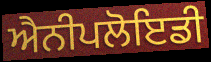
ਐਨੀਪਲੋਇਡੀ